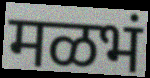
मळभं